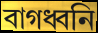
বাগধ্বনি